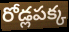
రోడ్లపక్క